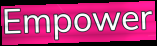
Empower